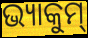
ଭ୍ୟାକୁମ୍